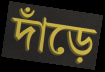
দাঁড়ে